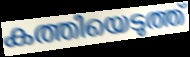
കത്തിയെടുത്ത്